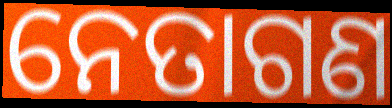
ନେତାଗଣ